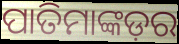
ପାତିମାଙ୍କଡ଼ର